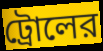
ট্রোলের